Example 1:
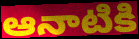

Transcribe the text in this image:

ఆనాటికి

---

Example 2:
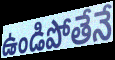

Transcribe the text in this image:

ఉండిపోతేనే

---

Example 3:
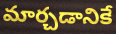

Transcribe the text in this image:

మార్చడానికే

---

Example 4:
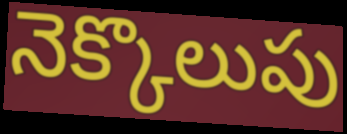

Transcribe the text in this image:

నెక్కొలుపు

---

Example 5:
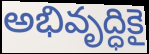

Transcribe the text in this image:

అభివృద్ధికై